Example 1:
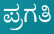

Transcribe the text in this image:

ಪ್ರಗತಿ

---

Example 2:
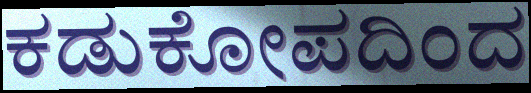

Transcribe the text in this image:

ಕಡುಕೋಪದಿಂದ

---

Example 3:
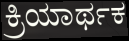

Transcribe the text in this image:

ಕ್ರಿಯಾರ್ಥಕ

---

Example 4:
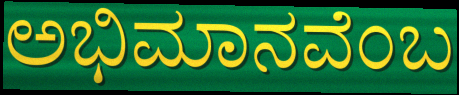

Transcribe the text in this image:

ಅಭಿಮಾನವೆಂಬ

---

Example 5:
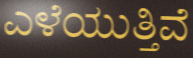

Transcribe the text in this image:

ಎಳೆಯುತ್ತಿವೆ